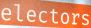
electors